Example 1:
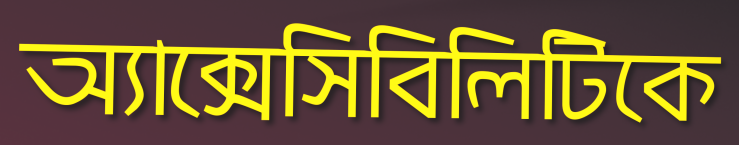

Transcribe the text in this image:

অ্যাক্সেসিবিলিটিকে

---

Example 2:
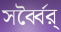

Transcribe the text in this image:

সর্ব্বৈর্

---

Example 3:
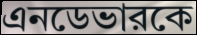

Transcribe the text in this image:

এনডেভারকে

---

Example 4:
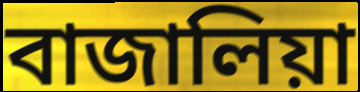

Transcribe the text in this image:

বাজালিয়া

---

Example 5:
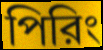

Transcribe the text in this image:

পিরিং